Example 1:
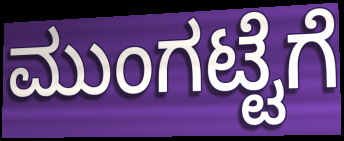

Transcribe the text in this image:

ಮುಂಗಟ್ಟೆಗೆ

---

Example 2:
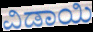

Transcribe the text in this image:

ವಿಡಾಯಿ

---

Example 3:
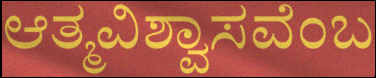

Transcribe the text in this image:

ಆತ್ಮವಿಶ್ವಾಸವೆಂಬ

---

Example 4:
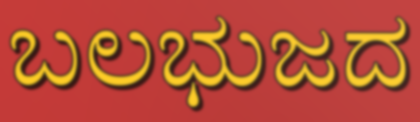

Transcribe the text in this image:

ಬಲಭುಜದ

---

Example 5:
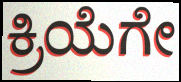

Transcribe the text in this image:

ಕ್ರಿಯೆಗೇ